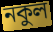
নকুল